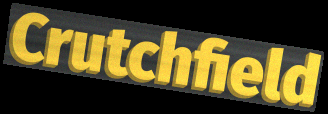
Crutchfield